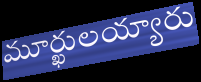
మూర్ఖులయ్యారు